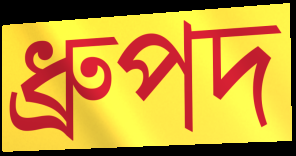
ধ্ৰুপদ